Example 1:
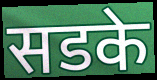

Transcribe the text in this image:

सडके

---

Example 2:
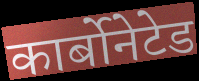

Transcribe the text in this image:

कार्बोनेटेड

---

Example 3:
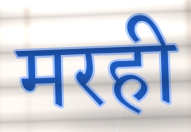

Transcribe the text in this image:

मरही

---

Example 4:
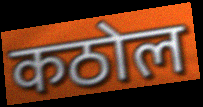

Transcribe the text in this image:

कठोल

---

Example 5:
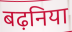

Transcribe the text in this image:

बढ़निया